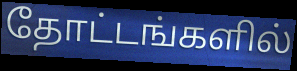
தோட்டங்களில்